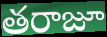
తరాజూ